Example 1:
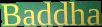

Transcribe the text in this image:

Baddha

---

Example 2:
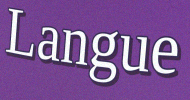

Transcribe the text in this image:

Langue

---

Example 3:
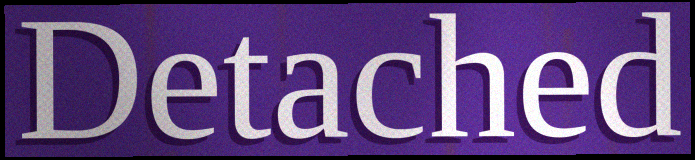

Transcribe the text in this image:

Detached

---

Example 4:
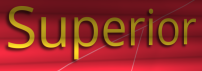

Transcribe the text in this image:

Superior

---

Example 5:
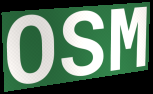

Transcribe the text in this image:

OSM